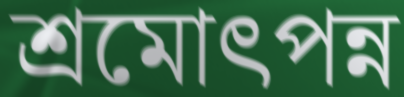
শ্রমোৎপন্ন